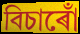
বিচাৰোঁ